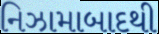
નિઝામાબાદથી